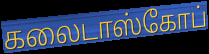
கலைடாஸ்கோப்